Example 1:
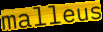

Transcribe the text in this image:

malleus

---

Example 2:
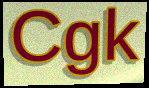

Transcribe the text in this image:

Cgk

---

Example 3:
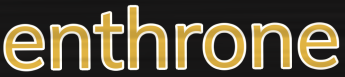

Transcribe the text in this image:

enthrone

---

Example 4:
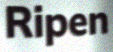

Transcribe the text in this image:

Ripen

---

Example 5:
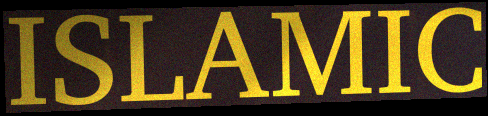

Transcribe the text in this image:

ISLAMIC